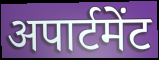
अपार्टमेंट